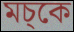
মচ্কে